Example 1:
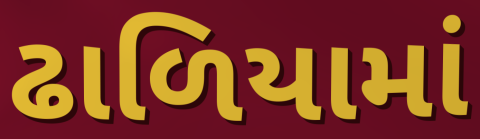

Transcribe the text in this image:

ઢાળિયામાં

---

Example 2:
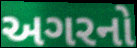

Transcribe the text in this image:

અગરનો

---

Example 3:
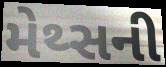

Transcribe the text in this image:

મેથ્સની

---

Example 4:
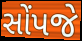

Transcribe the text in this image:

સોંપજે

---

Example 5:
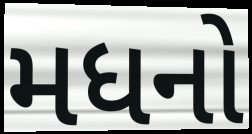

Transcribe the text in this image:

મધનો